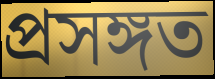
প্রসঙ্গত